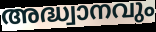
അദ്ധ്വാനവും